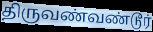
திருவண்வண்டூர்